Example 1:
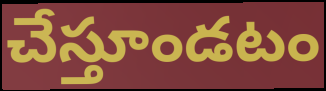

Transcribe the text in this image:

చేస్తూండటం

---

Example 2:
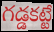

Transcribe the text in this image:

గడ్డకట్టే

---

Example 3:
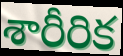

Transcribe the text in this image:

శారీరిక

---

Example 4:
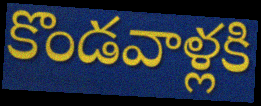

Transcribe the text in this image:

కొండవాళ్లకి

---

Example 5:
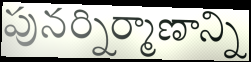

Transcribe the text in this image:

పునర్నిర్మాణాన్ని